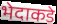
भेदाकडे